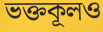
ভক্তকূলও